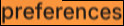
preferences